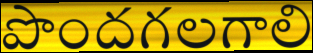
పొందగలగాలి